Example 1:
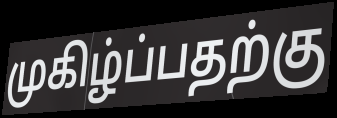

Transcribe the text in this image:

முகிழ்ப்பதற்கு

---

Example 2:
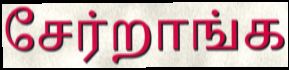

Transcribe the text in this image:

சேர்றாங்க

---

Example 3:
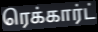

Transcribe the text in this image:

ரெக்கார்ட்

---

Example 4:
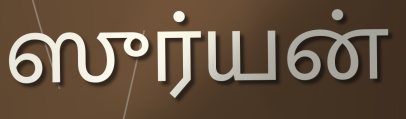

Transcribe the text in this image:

ஸுர்யன்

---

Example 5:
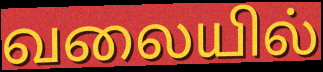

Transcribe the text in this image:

வலையில்